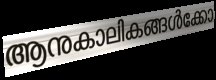
ആനുകാലികങ്ങൾക്കോ